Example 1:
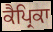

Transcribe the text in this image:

ਕੈਪ੍ਰਿਕਾ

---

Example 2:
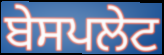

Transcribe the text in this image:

ਬੇਸਪਲੇਟ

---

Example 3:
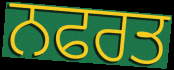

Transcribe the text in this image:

ਨਫਰਤ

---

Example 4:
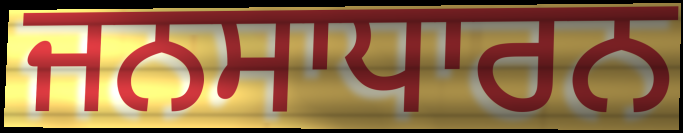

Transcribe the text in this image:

ਜਨਸਾਧਾਰਨ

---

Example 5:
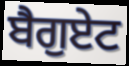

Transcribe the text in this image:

ਬੈਗੁਏਟ